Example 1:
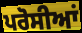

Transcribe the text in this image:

ਪਰੋਸੀਆਂ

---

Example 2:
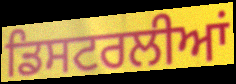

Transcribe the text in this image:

ਡਿਸਟਰਲੀਆਂ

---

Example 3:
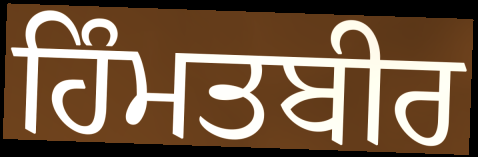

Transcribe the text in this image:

ਹਿੰਮਤਬੀਰ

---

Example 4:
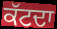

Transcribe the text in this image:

ਕੱਟਦਾ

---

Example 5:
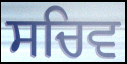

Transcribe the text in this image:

ਸਚਿਵ